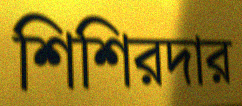
শিশিরদার